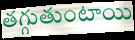
తగ్గుతుంటాయి